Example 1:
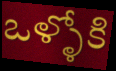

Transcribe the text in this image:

ఒళ్ళోకి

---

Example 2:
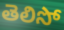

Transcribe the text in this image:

తెలిసో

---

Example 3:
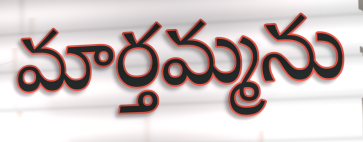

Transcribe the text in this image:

మార్తమ్మను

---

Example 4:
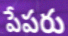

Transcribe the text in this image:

పేపరు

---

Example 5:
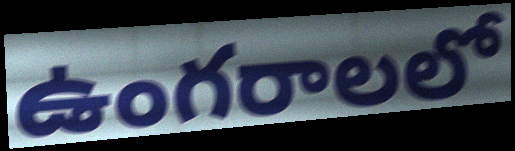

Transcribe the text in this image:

ఉంగరాలలో